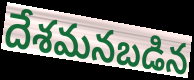
దేశమనబడిన